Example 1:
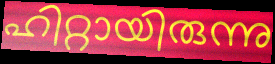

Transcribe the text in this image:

ഹിറ്റായിരുന്നു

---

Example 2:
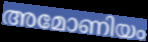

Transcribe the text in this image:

അമോണിയം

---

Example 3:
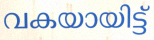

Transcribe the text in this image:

വകയായിട്ട്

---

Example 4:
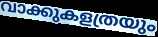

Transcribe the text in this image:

വാക്കുകളത്രയും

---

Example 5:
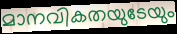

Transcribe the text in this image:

മാനവികതയുടേയും